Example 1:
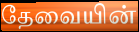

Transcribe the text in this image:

தேவையின்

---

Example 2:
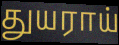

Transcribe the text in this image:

துயராய்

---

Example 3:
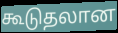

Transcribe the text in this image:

கூடுதலான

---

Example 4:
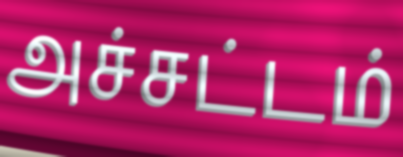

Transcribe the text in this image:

அச்சட்டம்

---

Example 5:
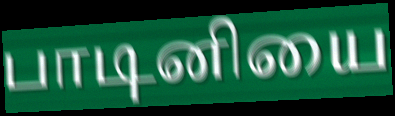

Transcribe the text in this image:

பாடினியை